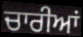
ਚਾਰੀਆਂ